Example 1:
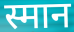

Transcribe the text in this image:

स्मान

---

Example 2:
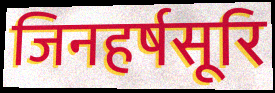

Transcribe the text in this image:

जिनहर्षसूरि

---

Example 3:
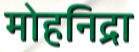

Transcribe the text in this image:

मोहनिद्रा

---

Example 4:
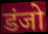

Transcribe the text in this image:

डंजो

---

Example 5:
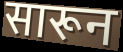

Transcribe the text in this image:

सारून